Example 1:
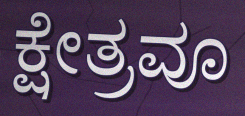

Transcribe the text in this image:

ಕ್ಷೇತ್ರವೂ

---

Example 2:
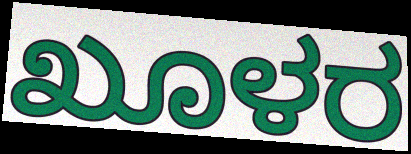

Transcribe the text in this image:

ಖೂಳರ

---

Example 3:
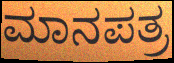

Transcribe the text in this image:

ಮಾನಪತ್ರ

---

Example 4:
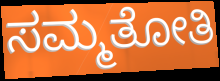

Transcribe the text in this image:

ಸಮ್ಮತೋತಿ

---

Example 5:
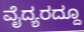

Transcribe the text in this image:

ವೈದ್ಯರದ್ದೂ